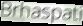
Brhaspati